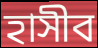
হাসীব